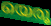
യെരൂ